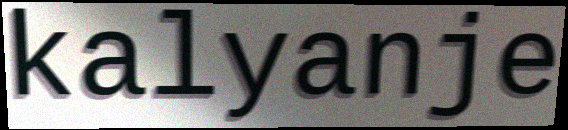
kalyanje